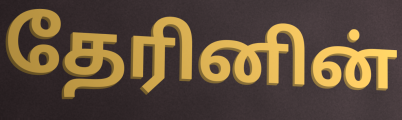
தேரினின்